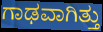
ಗಾಢವಾಗಿತ್ತು